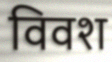
विवश